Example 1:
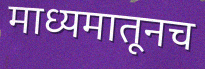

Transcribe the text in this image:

माध्यमातूनच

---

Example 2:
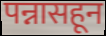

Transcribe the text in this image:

पन्नासहून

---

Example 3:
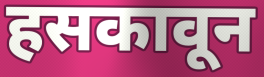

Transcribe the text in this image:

हसकावून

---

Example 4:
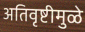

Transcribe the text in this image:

अतिवृष्टीमुळे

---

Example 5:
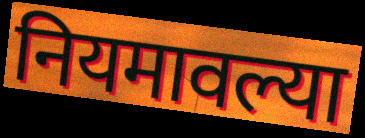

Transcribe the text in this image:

नियमावल्या